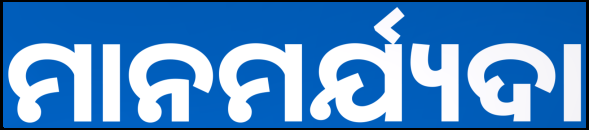
ମାନମର୍ଯ୍ୟଦା